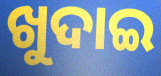
ଖୁଦାଇ